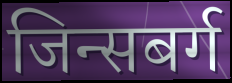
जिन्सबर्ग